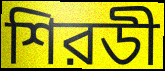
শিরডী